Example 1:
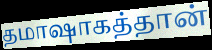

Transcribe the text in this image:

தமாஷாகத்தான்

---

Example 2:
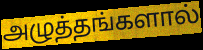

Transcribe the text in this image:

அழுத்தங்களால்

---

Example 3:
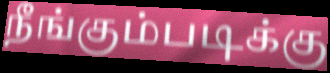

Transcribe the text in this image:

நீங்கும்படிக்கு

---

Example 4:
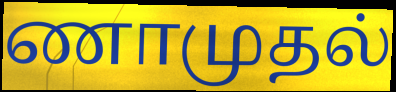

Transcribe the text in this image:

ணாமுதல்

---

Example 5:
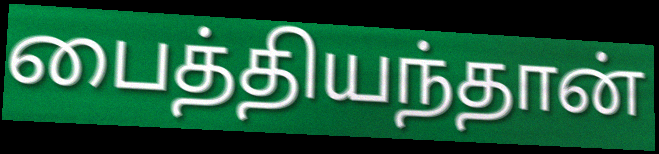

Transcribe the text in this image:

பைத்தியந்தான்